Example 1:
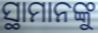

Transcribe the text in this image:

ସ୍ଥାମାନଙ୍କୁ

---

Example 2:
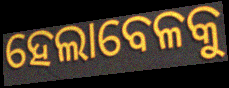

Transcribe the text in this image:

ହେଲାବେଳକୁ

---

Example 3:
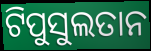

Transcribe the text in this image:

ଟିପୁସୁଲତାନ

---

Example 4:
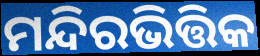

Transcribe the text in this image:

ମନ୍ଦିରଭିତ୍ତିକ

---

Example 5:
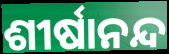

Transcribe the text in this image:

ଶୀର୍ଷାନନ୍ଦ